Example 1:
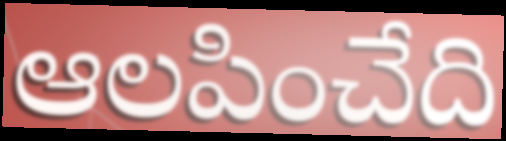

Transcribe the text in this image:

ఆలపించేది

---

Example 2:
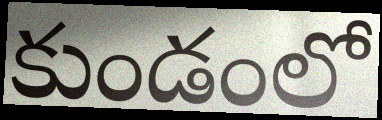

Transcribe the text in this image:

కుండంలో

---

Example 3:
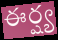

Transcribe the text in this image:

ఈర్ష్య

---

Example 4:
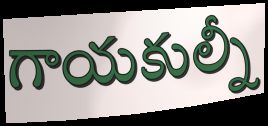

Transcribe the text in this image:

గాయకుల్నీ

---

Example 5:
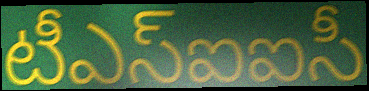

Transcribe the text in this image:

టీఎస్ఐఐసీ